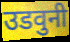
उडवुनी